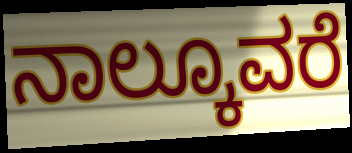
ನಾಲ್ಕೂವರೆ